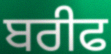
ਬਰੀਫ